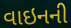
વાઇનની